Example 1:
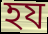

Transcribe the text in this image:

হয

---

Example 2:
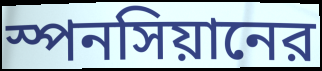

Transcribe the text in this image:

স্পনসিয়ানের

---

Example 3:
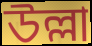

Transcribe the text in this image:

উল্লা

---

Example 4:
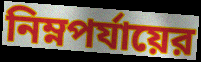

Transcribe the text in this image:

নিম্নপর্যায়ের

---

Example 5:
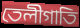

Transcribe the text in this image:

তেলীগাতি